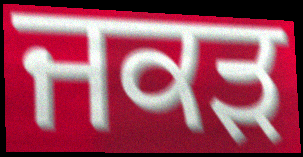
ਜਕਡ਼